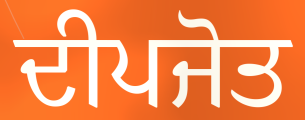
ਦੀਪਜੋਤ